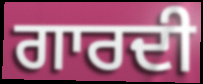
ਗਾਰਦੀ